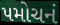
પમોચનં